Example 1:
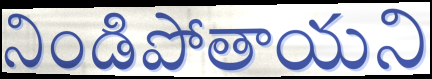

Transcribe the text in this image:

నిండిపోతాయని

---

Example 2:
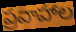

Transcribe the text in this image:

ప్రవాహాల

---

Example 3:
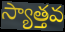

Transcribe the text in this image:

స్యాత్తవ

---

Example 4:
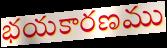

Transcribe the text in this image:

భయకారణము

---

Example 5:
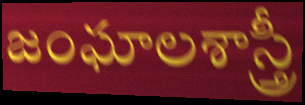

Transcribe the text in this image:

జంఘాలశాస్త్రీ